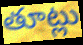
తూట్లు